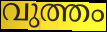
വുത്തം